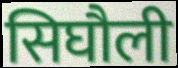
सिघौली